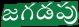
జగడపు